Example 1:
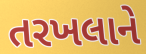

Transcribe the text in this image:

તરખલાને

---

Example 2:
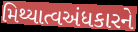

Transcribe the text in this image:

મિથ્યાત્વઅંધકારને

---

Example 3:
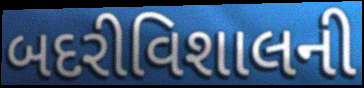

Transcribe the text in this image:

બદરીવિશાલની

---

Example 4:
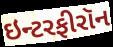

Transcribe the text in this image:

ઇન્ટરફીરૉન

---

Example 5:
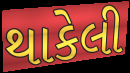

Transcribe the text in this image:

થાકેલી